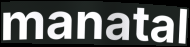
manatal